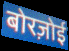
बोरज़ोई